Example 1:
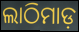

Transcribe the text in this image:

ଲାଠିମାଡ଼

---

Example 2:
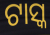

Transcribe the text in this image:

ଟାସ୍କ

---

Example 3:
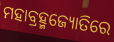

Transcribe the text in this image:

ମହାବ୍ରହ୍ମଜ୍ୟୋତିରେ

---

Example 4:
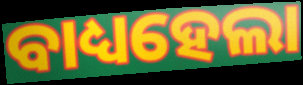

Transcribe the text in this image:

ବାଧ୍ୟହେଲା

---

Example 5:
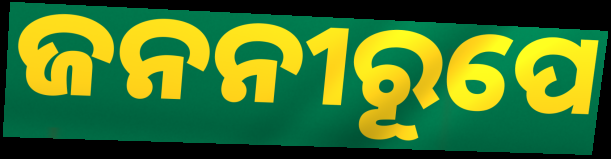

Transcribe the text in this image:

ଜନନୀରୂପେ